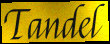
Tandel